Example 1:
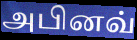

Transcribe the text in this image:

அபினவ்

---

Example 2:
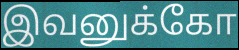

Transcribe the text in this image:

இவனுக்கோ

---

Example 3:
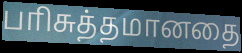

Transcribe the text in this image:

பரிசுத்தமானதை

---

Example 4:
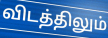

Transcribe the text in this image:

விடத்திலும்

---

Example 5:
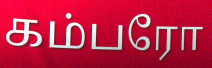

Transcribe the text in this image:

கம்பரோ